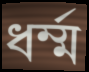
ধৰ্ম্ম